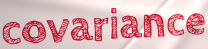
covariance